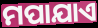
ମପାଯାଏ